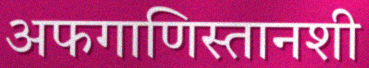
अफगाणिस्तानशी